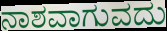
ನಾಶವಾಗುವದು